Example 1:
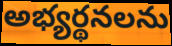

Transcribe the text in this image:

అభ్యర్థనలను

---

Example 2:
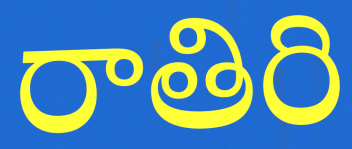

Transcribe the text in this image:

రాతిరి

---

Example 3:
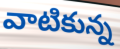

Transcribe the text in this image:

వాటికున్న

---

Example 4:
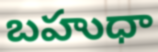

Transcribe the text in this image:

బహుధా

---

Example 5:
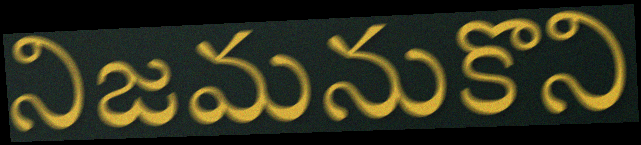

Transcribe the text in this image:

నిజమనుకొని